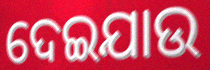
ଦେଇଯାଉ